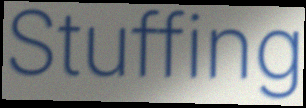
Stuffing